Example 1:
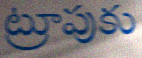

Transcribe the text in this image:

ట్రూపుకు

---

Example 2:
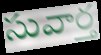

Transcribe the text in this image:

సువార్త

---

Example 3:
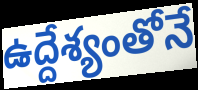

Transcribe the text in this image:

ఉద్దేశ్యంతోనే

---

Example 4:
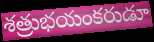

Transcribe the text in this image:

శత్రుభయంకరుడూ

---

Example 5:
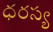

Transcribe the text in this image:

ధరస్య